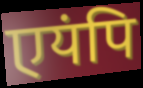
एयंपि